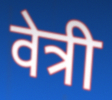
वेत्री